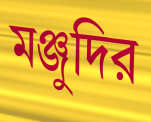
মঞ্জুদির